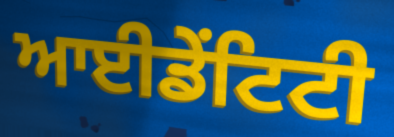
ਆਈਡੇਂਟਿਟੀ